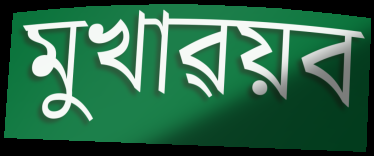
মুখাৱয়ব